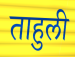
ताहुली